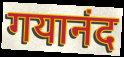
गयानंद